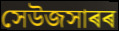
সেউজসাৰৰ